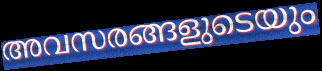
അവസരങ്ങളുടെയും